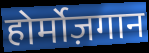
होर्मोज़गान